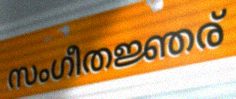
സംഗീതജ്ഞര്